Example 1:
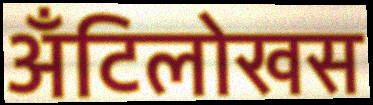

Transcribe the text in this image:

अँटिलोखस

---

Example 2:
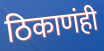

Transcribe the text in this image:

ठिकाणंही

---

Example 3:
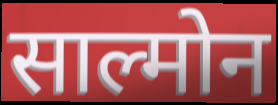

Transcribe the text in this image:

साल्मोन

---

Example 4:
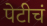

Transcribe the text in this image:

पेटीचं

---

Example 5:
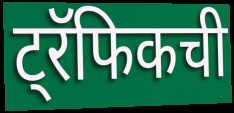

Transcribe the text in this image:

ट्रॅफिकची